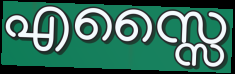
എസ്സൈ